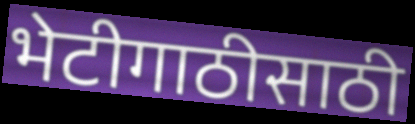
भेटीगाठीसाठी